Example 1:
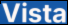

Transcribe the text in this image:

Vista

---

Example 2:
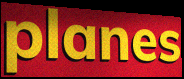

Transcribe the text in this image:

planes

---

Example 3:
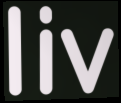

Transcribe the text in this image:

liv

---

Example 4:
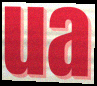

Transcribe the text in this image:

ua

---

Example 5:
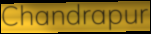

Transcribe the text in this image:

Chandrapur